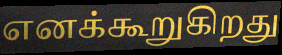
எனக்கூறுகிறது